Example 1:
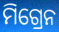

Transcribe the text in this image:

ମିଗ୍ରେନ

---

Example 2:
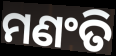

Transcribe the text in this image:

ମଣଂତି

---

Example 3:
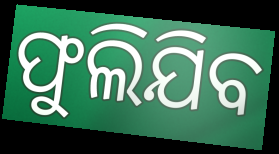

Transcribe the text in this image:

ଫୁଲିଯିବ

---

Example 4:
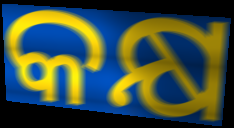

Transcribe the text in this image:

କକ୍ଷ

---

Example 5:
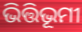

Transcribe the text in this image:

ଭିତ୍ତିଭୂମୀ